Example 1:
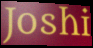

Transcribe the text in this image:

Joshi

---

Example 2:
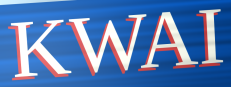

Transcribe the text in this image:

KWAI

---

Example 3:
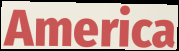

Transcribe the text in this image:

America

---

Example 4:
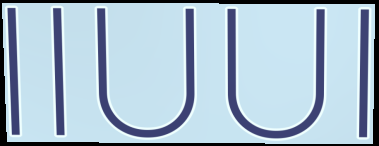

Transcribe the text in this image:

IIUUI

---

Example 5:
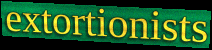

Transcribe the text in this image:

extortionists